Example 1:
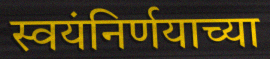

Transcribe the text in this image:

स्वयंनिर्णयाच्या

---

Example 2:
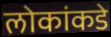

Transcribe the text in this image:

लोकांकडे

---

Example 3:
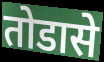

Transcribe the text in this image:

तोडासे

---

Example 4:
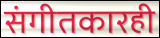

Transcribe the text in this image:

संगीतकारही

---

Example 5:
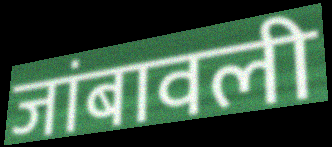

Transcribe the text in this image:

जांबावली